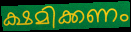
ക്ഷമിക്കണം